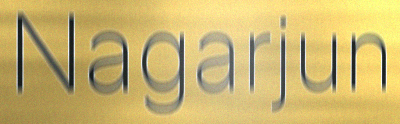
Nagarjun